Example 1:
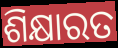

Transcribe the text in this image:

ଶିକ୍ଷାରତ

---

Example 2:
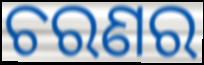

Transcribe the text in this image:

ଚରଣର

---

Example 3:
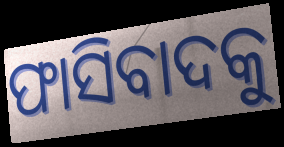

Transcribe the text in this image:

ଫାସିବାଦକୁ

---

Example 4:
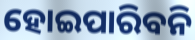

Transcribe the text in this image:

ହୋଇପାରିବନି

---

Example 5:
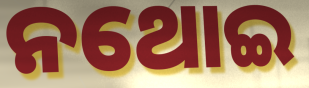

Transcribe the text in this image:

ନଥୋଇ